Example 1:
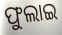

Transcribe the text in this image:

ଫୁଲାଇ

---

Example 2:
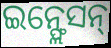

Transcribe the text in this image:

ଇନ୍ଫ୍ଲେସନ୍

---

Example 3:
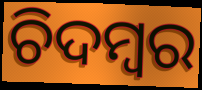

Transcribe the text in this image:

ଚିଦମ୍ବର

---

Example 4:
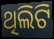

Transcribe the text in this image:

ଥିଲିଟି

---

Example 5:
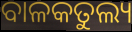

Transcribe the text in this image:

ବାଳକତୁଲ୍ୟ